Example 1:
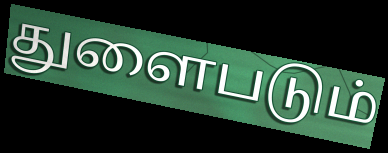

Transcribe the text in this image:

துளைபடும்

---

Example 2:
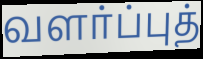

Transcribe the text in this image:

வளர்ப்புத்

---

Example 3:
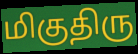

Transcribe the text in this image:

மிகுதிரு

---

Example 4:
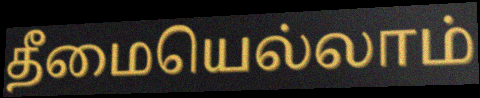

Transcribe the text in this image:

தீமையெல்லாம்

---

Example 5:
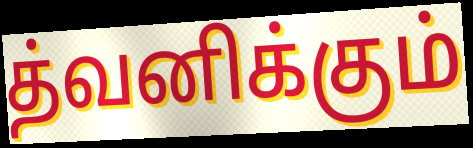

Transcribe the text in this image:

த்வனிக்கும்